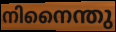
നിനൈന്തു